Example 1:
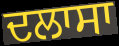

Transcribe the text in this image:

ਦਲਾਸਾ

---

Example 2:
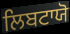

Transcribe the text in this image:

ਲਿਬਟਾਯੋ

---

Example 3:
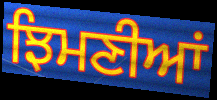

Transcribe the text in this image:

ਝਿਮਣੀਆਂ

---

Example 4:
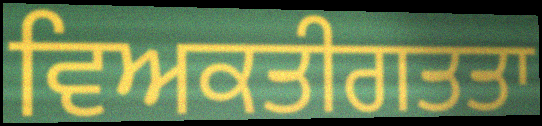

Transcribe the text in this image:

ਵਿਅਕਤੀਗਤਤਾ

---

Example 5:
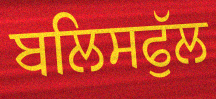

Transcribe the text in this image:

ਬਲਿਸਫੁੱਲ